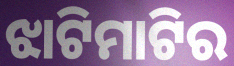
ଝାଟିମାଟିର